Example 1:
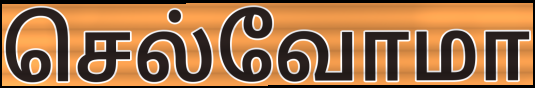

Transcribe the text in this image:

செல்வோமா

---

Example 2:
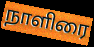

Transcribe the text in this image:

நாளிரை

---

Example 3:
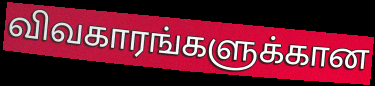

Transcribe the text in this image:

விவகாரங்களுக்கான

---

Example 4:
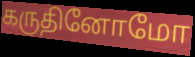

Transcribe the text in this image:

கருதினோமோ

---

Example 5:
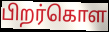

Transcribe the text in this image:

பிறர்கொள